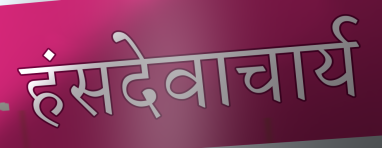
हंसदेवाचार्य